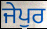
ਜੇਪੁਰ